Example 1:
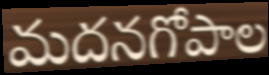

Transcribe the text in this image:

మదనగోపాల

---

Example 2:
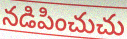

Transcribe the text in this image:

నడిపించుచు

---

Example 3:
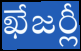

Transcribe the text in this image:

ఖేజర్లీ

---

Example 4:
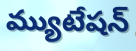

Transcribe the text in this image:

మ్యుటేషన్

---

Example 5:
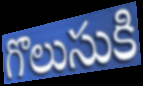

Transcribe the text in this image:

గొలుసుకి